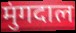
मुंगदाल